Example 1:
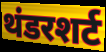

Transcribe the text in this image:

थंडरशर्ट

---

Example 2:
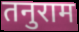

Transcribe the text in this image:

तनुराम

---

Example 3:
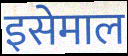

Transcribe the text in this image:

इसेमाल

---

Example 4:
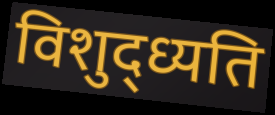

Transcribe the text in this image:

विशुद्ध्यति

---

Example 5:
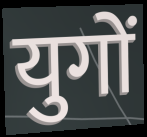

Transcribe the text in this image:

युगों